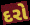
દરો